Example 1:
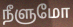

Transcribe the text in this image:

நீளுமோ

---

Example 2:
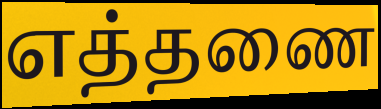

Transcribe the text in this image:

எத்தணை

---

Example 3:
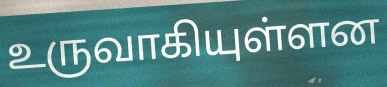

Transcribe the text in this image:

உருவாகியுள்ளன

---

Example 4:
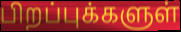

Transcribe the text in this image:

பிறப்புக்களுள்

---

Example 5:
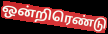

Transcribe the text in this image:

ஒன்றிரெண்டு